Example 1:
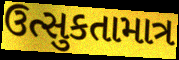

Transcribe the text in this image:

ઉત્સુકતામાત્ર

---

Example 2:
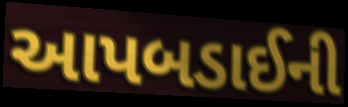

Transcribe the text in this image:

આપબડાઈની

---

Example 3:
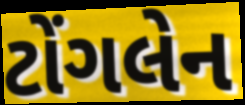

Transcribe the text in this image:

ટોંગલેન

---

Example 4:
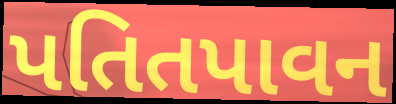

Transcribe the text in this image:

પતિતપાવન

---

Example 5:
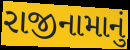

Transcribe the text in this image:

રાજીનામાનું